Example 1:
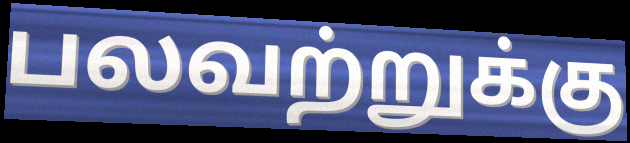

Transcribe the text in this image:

பலவற்றுக்கு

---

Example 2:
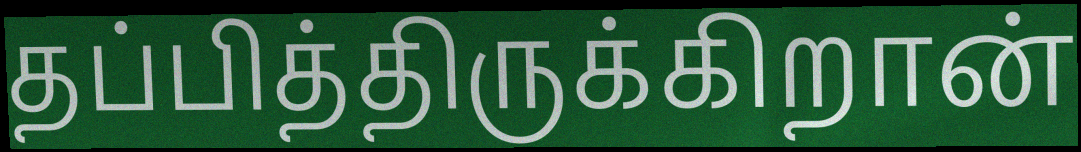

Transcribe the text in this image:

தப்பித்திருக்கிறான்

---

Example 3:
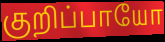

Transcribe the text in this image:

குறிப்பாயோ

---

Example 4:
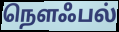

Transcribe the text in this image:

நௌஃபல்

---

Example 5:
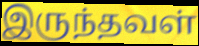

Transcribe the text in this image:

இருந்தவள்